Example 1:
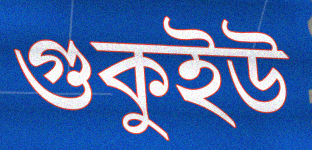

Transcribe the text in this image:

গুকুইউ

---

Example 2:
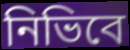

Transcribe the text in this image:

নিভিবে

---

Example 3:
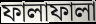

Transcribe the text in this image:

ফালাফালা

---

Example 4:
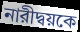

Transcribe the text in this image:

নারীদ্বয়কে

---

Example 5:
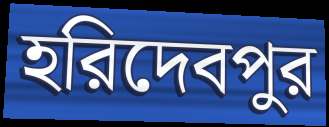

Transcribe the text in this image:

হরিদেবপুর